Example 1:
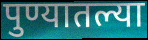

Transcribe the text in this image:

पुण्यातल्या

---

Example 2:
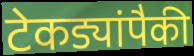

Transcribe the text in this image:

टेकड्यांपैकी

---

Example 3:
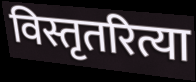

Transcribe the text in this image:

विस्तृतरित्या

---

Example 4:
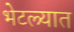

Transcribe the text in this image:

भेटल्यात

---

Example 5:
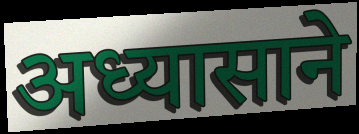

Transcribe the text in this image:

अध्यासाने